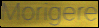
Morigere